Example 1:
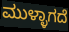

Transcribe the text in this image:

ಮುಳ್ಳಾಗದೆ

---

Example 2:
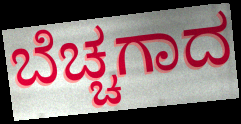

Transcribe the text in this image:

ಬೆಚ್ಚಗಾದ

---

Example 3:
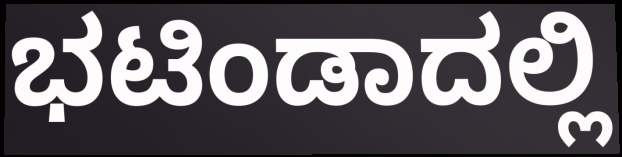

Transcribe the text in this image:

ಭಟಿಂಡಾದಲ್ಲಿ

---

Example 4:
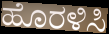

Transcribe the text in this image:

ಹೊರಳಿಸಿ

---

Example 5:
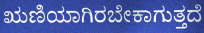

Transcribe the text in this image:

ಋಣಿಯಾಗಿರಬೇಕಾಗುತ್ತದೆ